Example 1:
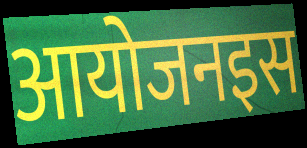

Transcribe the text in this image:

आयोजनइस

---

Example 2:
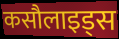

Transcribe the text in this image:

कसौलाइड्स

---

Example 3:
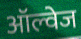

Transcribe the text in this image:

ऑल्वेज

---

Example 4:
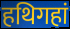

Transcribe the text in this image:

हथिगहां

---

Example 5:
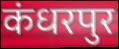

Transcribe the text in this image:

कंधरपुर